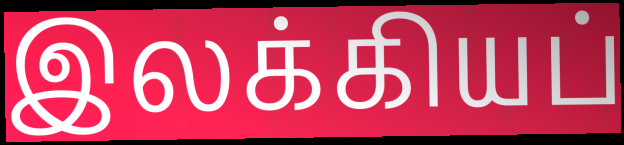
இலக்கியப்